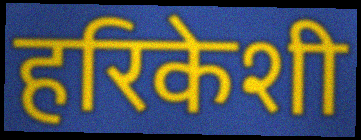
हरिकेशी